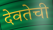
देवतेची